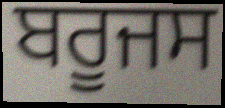
ਬਰੂਜਸ